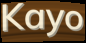
Kayo